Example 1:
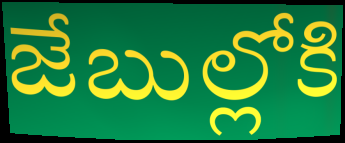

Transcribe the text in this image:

జేబుల్లోకి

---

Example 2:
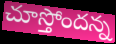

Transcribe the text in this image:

చూస్తోందన్న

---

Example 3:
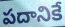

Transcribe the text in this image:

పదానికే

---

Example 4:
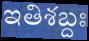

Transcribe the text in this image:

ఇతిశబ్దః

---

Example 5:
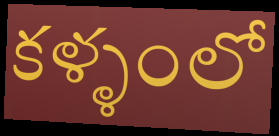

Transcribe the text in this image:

కళ్ళంలో